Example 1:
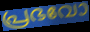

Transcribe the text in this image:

പ്രഭവോ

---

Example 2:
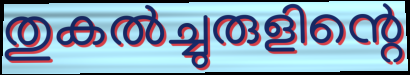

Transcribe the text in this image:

തുകൽച്ചുരുളിന്റെ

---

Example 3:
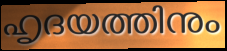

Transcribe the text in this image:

ഹൃദയത്തിനും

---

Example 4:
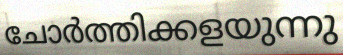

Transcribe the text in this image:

ചോർത്തിക്കളയുന്നു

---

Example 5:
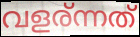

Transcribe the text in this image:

വളര്ന്നത്